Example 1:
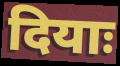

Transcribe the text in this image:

दियाः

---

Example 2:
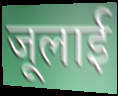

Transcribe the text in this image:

जूलाई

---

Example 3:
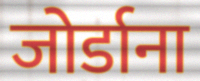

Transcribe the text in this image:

जोर्डाना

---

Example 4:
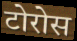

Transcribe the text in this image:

टोरोस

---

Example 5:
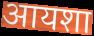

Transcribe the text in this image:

आयशा